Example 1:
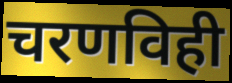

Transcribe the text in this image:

चरणविही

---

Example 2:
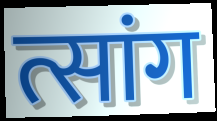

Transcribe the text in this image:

त्सांग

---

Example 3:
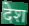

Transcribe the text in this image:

देश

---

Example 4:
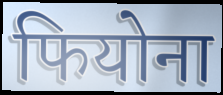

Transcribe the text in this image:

फियोना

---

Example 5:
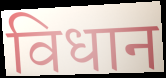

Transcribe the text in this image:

विधान